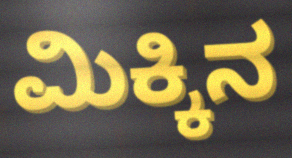
ಮಿಕ್ಕಿನ